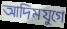
আদিমযুগে